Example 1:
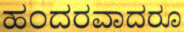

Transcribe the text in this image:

ಹಂದರವಾದರೂ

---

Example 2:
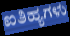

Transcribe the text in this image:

ಐತಿಹ್ಯಗಳು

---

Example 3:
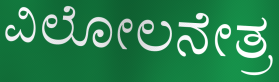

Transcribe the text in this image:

ವಿಲೋಲನೇತ್ರ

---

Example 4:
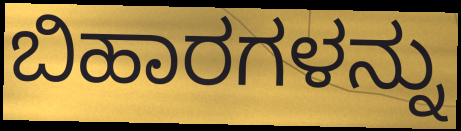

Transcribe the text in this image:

ಬಿಹಾರಗಳನ್ನು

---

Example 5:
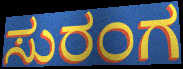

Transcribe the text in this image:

ಸುರಂಗ